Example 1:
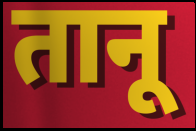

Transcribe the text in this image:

तानू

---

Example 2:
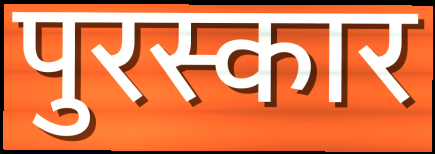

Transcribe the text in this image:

पुरस्कार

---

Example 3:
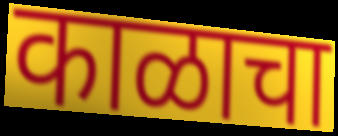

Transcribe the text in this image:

काळाचा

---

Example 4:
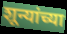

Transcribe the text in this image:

शून्यांच्या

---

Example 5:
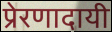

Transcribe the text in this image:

प्रेरणादायी